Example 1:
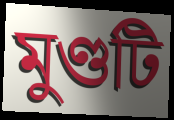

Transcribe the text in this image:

মুণ্ডটি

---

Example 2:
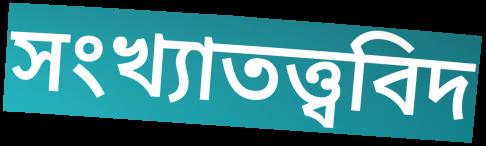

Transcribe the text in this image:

সংখ্যাতত্ত্ববিদ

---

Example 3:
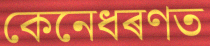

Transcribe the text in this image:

কেনেধৰণত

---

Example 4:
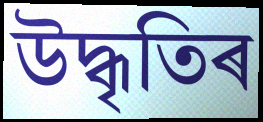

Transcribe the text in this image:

উদ্ধৃতিৰ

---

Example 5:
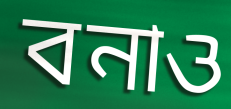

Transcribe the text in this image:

বনাও